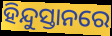
ହିନ୍ଦୁସ୍ତାନରେ